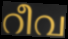
റീവ